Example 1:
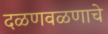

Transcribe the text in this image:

दळणवळणाचे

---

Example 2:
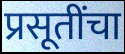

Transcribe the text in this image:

प्रसूतींचा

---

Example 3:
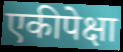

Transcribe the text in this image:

एकीपेक्षा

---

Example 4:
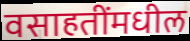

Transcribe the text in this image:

वसाहतींमधील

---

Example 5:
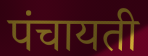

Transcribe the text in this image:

पंचायती